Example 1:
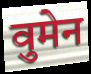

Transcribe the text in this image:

वुमेन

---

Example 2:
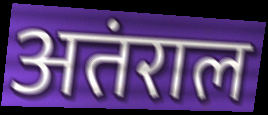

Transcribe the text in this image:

अतंराल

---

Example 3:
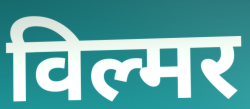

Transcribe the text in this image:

विल्मर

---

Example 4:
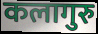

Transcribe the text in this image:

कलागुरु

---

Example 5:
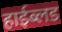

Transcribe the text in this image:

हाईब्लड